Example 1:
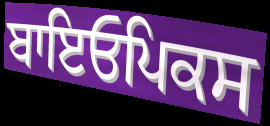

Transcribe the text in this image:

ਬਾਇਓਪਿਕਸ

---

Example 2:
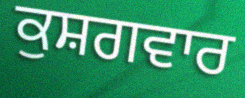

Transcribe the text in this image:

ਕੁਸ਼ਗਵਾਰ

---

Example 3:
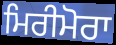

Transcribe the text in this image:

ਮਿਰੀਮੋਰਾ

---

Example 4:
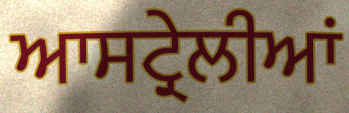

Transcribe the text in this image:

ਆਸਟ੍ਰੇਲੀਆਂ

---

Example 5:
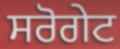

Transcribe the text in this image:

ਸਰੋਗੇਟ